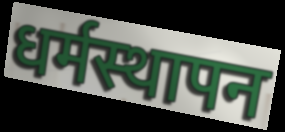
धर्मस्थापन